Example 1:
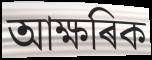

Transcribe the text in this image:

আক্ষৰিক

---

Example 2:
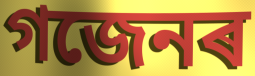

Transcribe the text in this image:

গজেনৰ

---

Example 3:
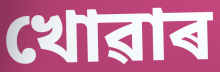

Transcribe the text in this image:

খোৱাৰ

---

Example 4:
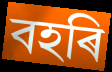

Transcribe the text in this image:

বহৰি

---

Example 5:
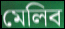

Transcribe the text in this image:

মেলিব